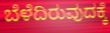
ಬೆಳೆದಿರುವುದಕ್ಕೆ